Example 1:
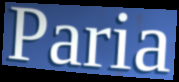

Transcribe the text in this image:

Paria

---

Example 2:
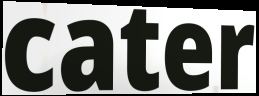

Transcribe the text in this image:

cater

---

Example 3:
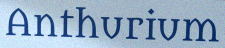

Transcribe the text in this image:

Anthurium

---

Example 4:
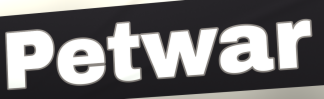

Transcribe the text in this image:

Petwar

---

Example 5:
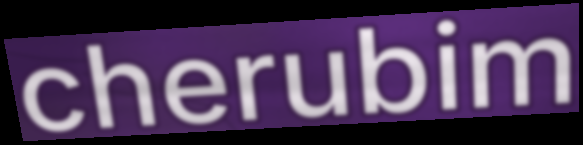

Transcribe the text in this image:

cherubim